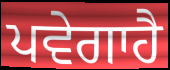
ਪਵੇਗਾਹੈ